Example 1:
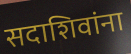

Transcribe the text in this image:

सदाशिवांना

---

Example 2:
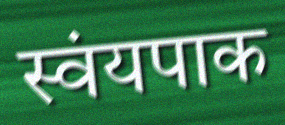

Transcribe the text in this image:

स्वंयपाक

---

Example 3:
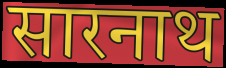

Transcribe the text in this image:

सारनाथ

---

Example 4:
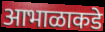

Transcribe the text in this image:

आभाळाकडे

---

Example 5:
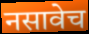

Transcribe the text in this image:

नसावेच